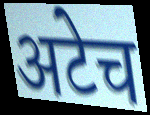
अटेच